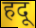
हदू